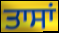
ਤਾਸਾਂ